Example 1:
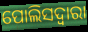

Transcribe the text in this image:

ପୋଲିସଦ୍ୱାରା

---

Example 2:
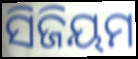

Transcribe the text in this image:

ସିଜିୟମ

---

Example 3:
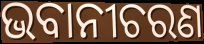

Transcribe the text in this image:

ଭବାନୀଚରଣ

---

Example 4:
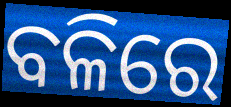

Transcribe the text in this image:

ବଳିରେ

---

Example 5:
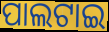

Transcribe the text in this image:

ପାଲଟାଇ